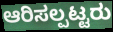
ಆರಿಸಲ್ಪಟ್ಟರು